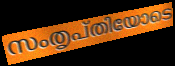
സംതൃപ്‌തിയോടെ